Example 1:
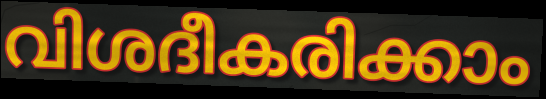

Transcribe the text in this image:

വിശദീകരിക്കാം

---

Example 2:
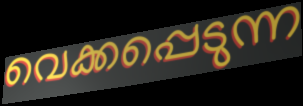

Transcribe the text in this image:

വെക്കപ്പെടുന്ന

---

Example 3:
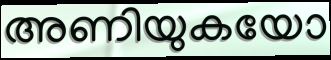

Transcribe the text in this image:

അണിയുകയോ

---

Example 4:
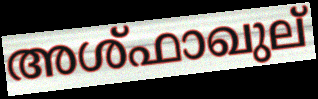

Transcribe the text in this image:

അശ്ഫാഖുല്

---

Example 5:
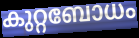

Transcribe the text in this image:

കുറ്റബോധം